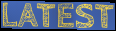
LATEST